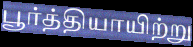
பூர்த்தியாயிற்று